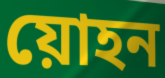
য়োহন